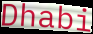
Dhabi